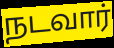
நடவார்